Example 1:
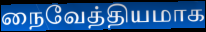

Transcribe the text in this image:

நைவேத்தியமாக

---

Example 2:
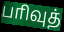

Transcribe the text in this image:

பரிவுத்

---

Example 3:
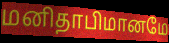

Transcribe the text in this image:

மனிதாபிமானமே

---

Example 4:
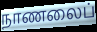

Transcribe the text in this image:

நாணலைப்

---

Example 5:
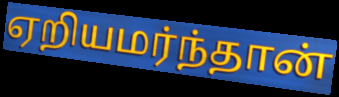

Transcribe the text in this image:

ஏறியமர்ந்தான்